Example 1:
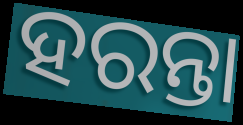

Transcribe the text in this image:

ହରନ୍ତା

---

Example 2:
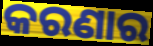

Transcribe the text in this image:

କରଣାର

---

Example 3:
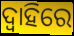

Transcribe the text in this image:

ଦ୍ୱାହିରେ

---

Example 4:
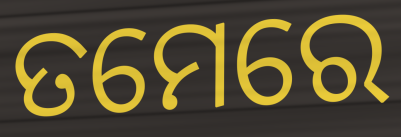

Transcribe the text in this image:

ତମେରେ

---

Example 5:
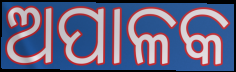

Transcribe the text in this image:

ଅପାଳକ